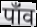
पांँव